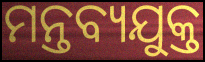
ମନ୍ତବ୍ୟଯୁକ୍ତ